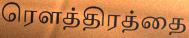
ரௌத்திரத்தை